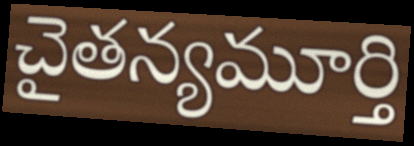
చైతన్యమూర్తి